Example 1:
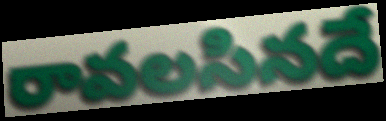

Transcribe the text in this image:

రావలసినదే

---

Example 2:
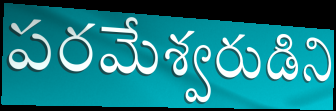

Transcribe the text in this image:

పరమేశ్వరుడిని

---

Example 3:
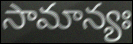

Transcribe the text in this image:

సామాన్యః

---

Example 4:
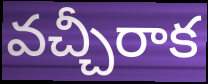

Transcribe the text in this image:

వచ్చీరాక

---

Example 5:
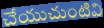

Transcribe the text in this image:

చేయుచుంటివి